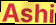
Ashi